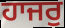
ਹਾਜਰੁ